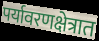
पर्यावरणक्षेत्रात